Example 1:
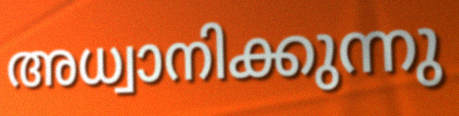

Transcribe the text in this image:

അധ്വാനിക്കുന്നു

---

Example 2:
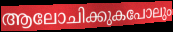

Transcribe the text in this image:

ആലോചിക്കുകപോലും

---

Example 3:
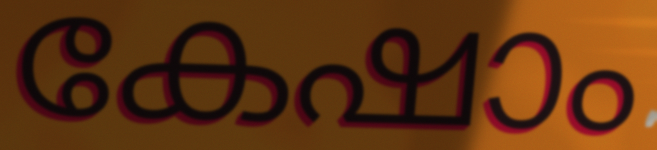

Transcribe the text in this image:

കേഷാം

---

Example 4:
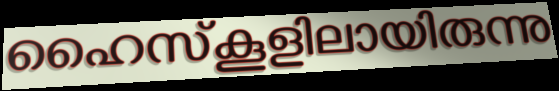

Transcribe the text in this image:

ഹൈസ്‌കൂളിലായിരുന്നു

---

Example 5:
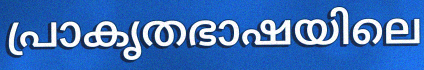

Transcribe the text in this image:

പ്രാകൃതഭാഷയിലെ